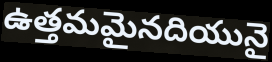
ఉత్తమమైనదియునై